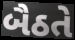
બૈઠતે